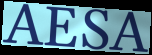
AESA